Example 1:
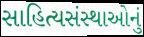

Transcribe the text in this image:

સાહિત્યસંસ્થાઓનું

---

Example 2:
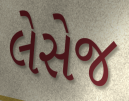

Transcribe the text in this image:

લેસેજ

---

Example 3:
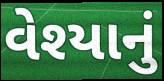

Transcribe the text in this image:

વેશ્યાનું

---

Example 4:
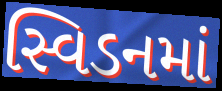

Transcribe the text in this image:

સ્વિડનમાં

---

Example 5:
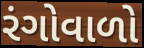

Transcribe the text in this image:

રંગોવાળો